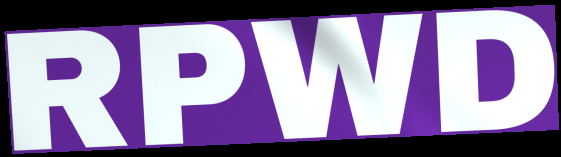
RPWD